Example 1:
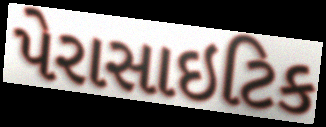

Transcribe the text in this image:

પેરાસાઇટિક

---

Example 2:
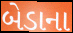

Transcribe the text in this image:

બેડાના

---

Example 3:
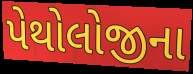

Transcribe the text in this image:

પેથોલોજીના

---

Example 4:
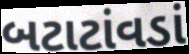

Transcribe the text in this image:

બટાટાંવડાં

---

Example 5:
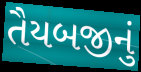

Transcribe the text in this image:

તૈયબજીનું